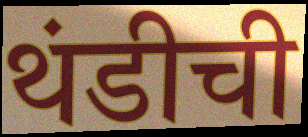
थंडीची